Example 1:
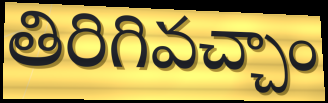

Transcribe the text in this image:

తిరిగివచ్చాం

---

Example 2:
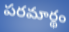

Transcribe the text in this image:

పరమార్థం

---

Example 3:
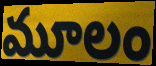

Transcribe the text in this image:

మూలం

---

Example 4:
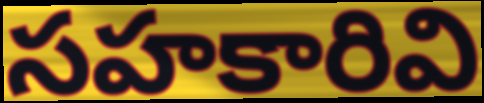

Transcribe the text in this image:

సహకారివి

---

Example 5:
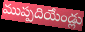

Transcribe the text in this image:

ముప్పదియేండ్లు